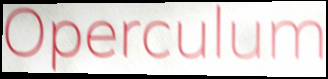
Operculum